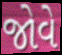
જોવે